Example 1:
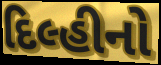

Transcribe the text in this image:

દિલ્હીનો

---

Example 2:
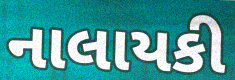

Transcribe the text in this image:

નાલાયકી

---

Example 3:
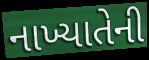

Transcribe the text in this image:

નાખ્યાતેની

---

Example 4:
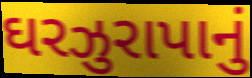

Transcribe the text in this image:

ઘરઝુરાપાનું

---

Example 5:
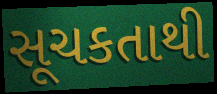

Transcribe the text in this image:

સૂચકતાથી